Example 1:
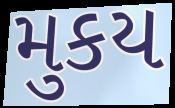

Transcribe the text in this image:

મુકય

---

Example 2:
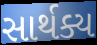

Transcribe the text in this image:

સાર્થક્ય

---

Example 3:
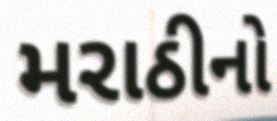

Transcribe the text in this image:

મરાઠીનો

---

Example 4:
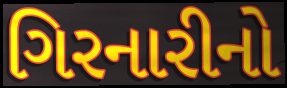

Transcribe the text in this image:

ગિરનારીનો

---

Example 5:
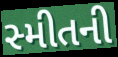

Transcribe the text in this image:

સ્મીતની